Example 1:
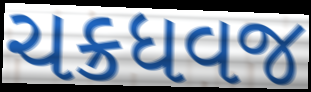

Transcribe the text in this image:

ચક્રધવજ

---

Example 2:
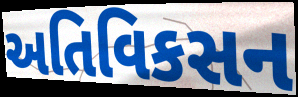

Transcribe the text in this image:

અતિવિકસન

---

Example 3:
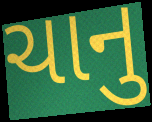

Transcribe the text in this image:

ચાનુ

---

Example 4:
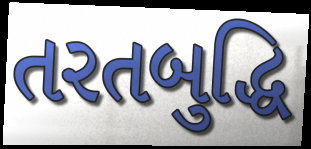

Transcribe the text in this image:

તરતબુદ્ધિ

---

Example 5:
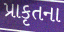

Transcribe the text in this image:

પ્રાકૃતના